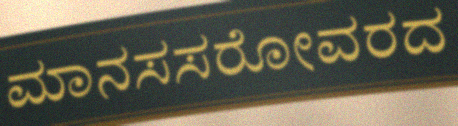
ಮಾನಸಸರೋವರದ